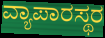
ವ್ಯಾಪಾರಸ್ಥರ